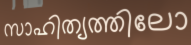
സാഹിത്യത്തിലോ